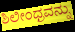
ಶಿಲೀಂಧ್ರವನ್ನು